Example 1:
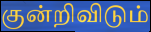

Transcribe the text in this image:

குன்றிவிடும்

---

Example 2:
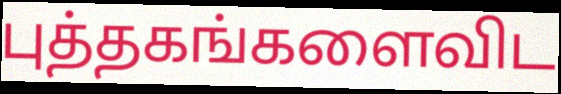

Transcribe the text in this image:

புத்தகங்களைவிட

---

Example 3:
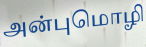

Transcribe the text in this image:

அன்புமொழி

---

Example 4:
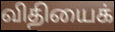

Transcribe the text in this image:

விதியைக்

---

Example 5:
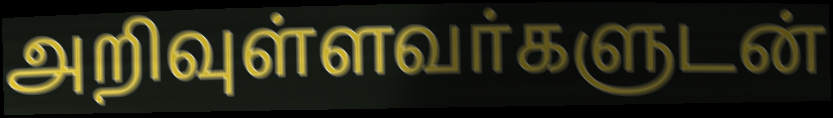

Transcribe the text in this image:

அறிவுள்ளவர்களுடன்